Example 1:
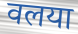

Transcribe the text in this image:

वलया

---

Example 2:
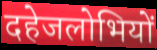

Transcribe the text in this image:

दहेजलोभियों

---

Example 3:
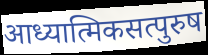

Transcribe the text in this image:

आध्यात्मिकसत्पुरुष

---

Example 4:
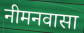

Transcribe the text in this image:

नीमनवासा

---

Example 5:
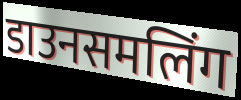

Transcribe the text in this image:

डाउनसमलिंग